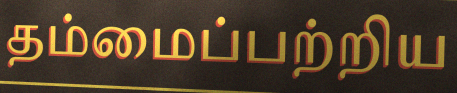
தம்மைப்பற்றிய